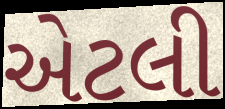
એટલી